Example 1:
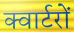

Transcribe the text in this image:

क्वार्टरों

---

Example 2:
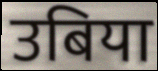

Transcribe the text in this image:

उबिया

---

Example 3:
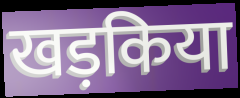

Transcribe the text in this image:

खड़किया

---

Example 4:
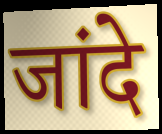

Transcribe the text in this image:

जांदे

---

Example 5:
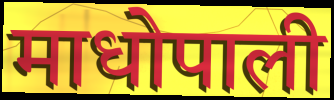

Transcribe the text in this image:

माधोपाली